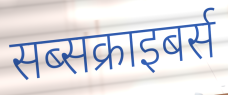
सब्सक्राइबर्स